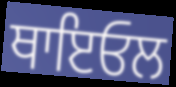
ਥਾਇਓਲ